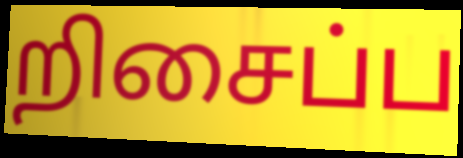
றிசைப்ப